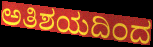
ಅತಿಶಯದಿಂದ